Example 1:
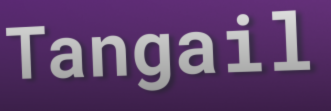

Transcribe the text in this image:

Tangail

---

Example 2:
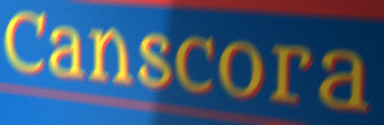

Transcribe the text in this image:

Canscora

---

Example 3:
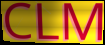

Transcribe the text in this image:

CLM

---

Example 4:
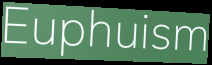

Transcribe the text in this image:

Euphuism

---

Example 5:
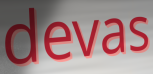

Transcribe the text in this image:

devas